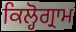
ਕਿਲ੍ਹੋਗ੍ਰਾਮ